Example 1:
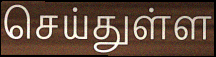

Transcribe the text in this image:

செய்துள்ள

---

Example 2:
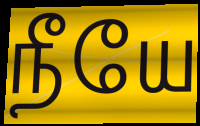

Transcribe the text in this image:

நீயே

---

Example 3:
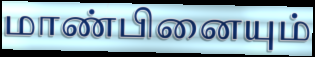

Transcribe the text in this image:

மாண்பினையும்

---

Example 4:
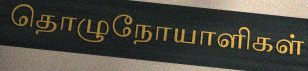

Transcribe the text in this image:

தொழுநோயாளிகள்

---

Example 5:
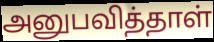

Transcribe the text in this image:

அனுபவித்தாள்